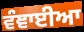
ਵੰਞਾਈਆ